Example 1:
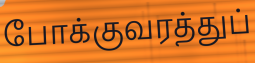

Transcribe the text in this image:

போக்குவரத்துப்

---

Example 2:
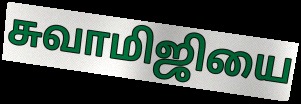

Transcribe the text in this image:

சுவாமிஜியை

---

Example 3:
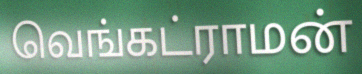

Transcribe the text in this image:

வெங்கட்ராமன்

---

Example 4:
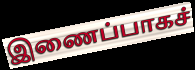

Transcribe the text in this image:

இணைப்பாகச்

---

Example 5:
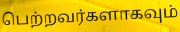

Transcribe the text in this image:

பெற்றவர்களாகவும்